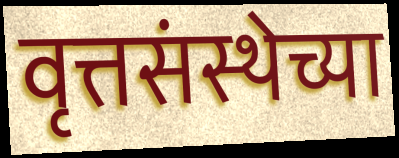
वृत्तसंस्थेच्या